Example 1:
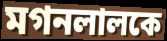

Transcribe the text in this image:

মগনলালকে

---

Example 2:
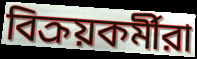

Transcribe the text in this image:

বিক্রয়কর্মীরা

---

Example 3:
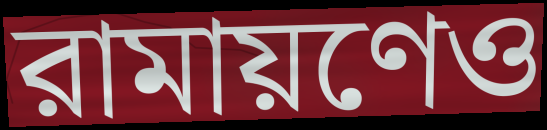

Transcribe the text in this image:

রামায়ণেও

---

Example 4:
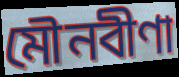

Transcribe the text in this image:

মৌনবীণা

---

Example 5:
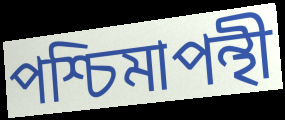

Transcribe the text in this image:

পশ্চিমাপন্থী